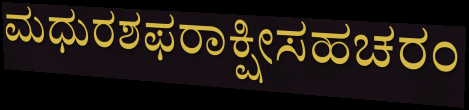
ಮಧುರಶಫರಾಕ್ಷೀಸಹಚರಂ